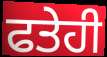
ਫਤੇਹੀ